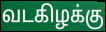
வடகிழக்கு